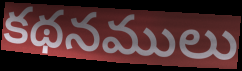
కథనములు